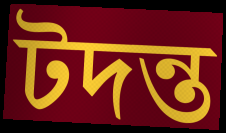
টদন্ত